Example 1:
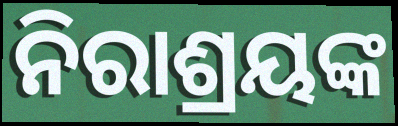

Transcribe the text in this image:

ନିରାଶ୍ରୟଙ୍କ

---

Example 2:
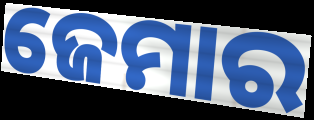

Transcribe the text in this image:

ଜେମାର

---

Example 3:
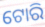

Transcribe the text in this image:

ଟୋରି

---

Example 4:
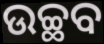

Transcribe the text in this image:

ଉଚ୍ଛବ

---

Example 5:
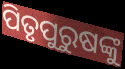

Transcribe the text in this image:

ପିତୃପୁରୁଷଙ୍କୁ